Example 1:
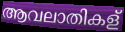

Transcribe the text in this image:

ആവലാതികള്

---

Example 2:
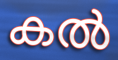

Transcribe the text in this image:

കൽ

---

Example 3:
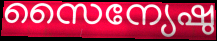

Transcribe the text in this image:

സൈന്യേഷു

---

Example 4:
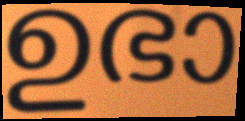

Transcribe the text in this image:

ഉഭാ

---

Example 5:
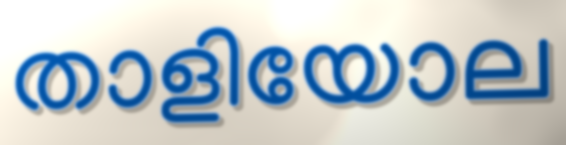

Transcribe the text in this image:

താളിയോല